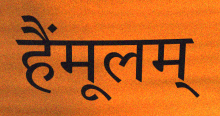
हैंमूलम्